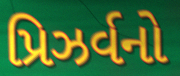
પ્રિઝર્વનો